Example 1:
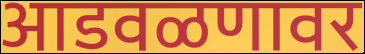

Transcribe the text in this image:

आडवळणावर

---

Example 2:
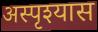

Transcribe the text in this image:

अस्पृश्यास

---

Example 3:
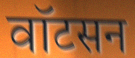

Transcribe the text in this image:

वॉटसन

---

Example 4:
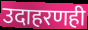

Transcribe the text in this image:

उदाहरणही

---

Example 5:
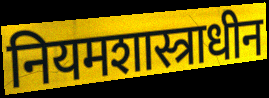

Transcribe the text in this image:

नियमशास्त्राधीन